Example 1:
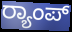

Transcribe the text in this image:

ರ‍್ಯಾಂಪ್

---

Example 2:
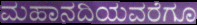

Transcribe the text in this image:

ಮಹಾನದಿಯವರೆಗೂ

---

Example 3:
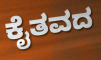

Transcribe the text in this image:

ಕೈತವದ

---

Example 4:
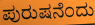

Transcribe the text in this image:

ಪುರುಷನೆಂದು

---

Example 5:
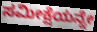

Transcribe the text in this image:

ಸಮೀಕ್ಷೆಯನ್ನೇ